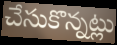
చేసుకొన్నట్లు